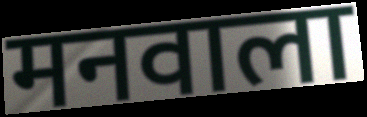
मनवाला